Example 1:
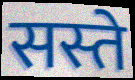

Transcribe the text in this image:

सस्‍ते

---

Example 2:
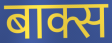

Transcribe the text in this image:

बाक्स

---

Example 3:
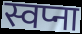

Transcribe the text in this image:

स्‍वप्‍ना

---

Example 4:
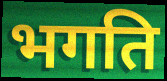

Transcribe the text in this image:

भगति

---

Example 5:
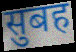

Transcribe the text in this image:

सुबह